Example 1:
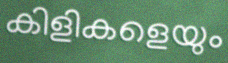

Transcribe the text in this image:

കിളികളെയും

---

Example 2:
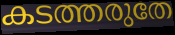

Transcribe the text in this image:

കടത്തരുതേ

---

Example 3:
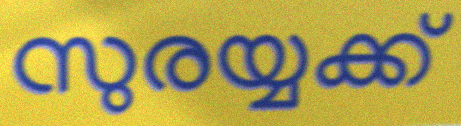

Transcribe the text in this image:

സുരയ്യക്ക്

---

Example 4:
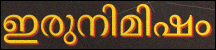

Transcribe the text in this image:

ഇരുനിമിഷം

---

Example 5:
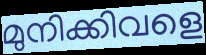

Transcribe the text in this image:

മുനിക്കിവളെ